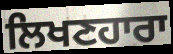
ਲਿਖਣਹਾਰਾ